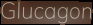
Glucagon